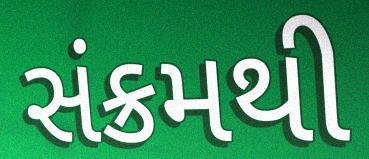
સંક્રમથી